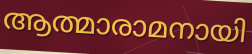
ആത്മാരാമനായി